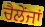
ਚੈਲੇਂਜਾਂ